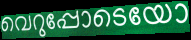
വെറുപ്പോടെയോ